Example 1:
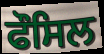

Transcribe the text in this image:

ਫੌਸਿਲ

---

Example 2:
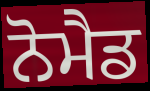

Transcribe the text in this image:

ਨੋਮੈਡ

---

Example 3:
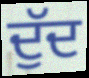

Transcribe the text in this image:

ਦੁੱਦ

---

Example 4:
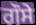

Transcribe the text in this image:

ਗੌਸੇ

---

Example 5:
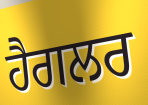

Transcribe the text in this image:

ਹੈਗਲਰ